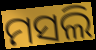
ମସଲି